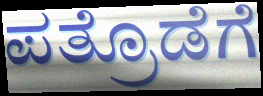
ಪತ್ರೊಡೆಗೆ